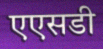
एएसडी